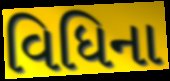
વિધિના